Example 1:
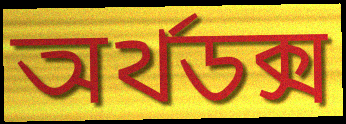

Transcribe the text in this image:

অর্থডক্স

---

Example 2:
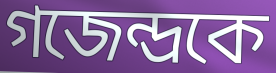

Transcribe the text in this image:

গজেন্দ্রকে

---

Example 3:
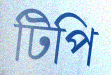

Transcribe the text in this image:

টিপি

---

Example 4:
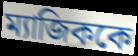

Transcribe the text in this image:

ম্যাজিককে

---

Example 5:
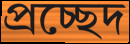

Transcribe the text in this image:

প্রচ্ছেদ